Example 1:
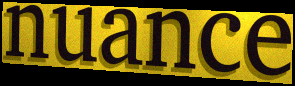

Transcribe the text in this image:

nuance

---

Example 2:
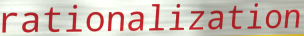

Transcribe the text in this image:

rationalization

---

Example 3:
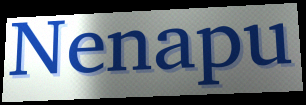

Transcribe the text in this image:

Nenapu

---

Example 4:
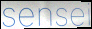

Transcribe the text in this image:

sensei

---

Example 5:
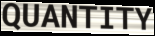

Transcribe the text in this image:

QUANTITY